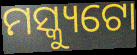
ମସ୍କ୍ୟୁଟୋ